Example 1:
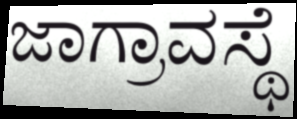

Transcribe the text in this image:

ಜಾಗ್ರಾವಸ್ಥೆ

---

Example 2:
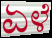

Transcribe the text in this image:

ಏಳೆ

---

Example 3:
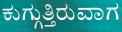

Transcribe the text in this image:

ಕುಗ್ಗುತ್ತಿರುವಾಗ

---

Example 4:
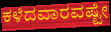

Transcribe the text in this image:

ಕಳೆದವಾರವಷ್ಟೇ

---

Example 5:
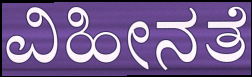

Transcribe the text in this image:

ವಿಹೀನತೆ